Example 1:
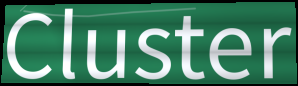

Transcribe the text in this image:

Cluster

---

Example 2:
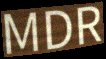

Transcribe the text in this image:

MDR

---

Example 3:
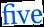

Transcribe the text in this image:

five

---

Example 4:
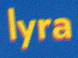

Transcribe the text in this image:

lyra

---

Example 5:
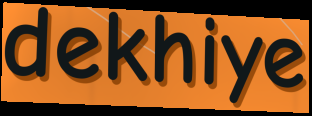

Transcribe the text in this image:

dekhiye